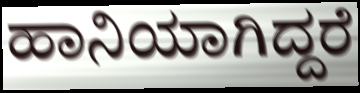
ಹಾನಿಯಾಗಿದ್ದರೆ